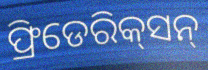
ଫ୍ରିଡେରିକ୍‌ସନ୍